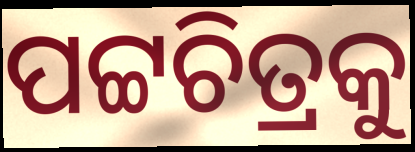
ପଟ୍ଟଚିତ୍ରକୁ